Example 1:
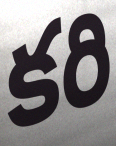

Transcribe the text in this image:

కరి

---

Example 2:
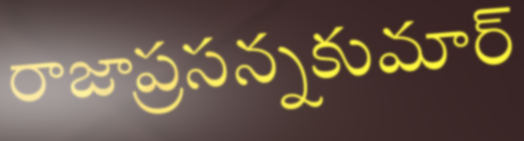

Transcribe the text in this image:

రాజాప్రసన్నకుమార్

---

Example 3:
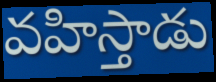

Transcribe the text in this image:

వహిస్తాడు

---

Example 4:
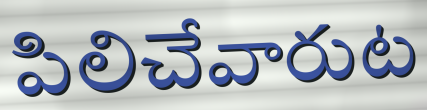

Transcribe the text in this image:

పిలిచేవారుట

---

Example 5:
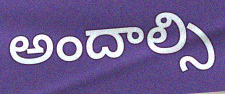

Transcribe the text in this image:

అందాల్సి